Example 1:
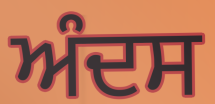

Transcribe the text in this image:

ਅੰਦਸ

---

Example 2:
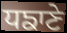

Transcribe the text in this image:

ਧਙਾਣੇ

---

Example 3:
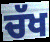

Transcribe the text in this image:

ਚੱਖ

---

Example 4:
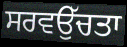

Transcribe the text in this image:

ਸਰਵਉੱਚਤਾ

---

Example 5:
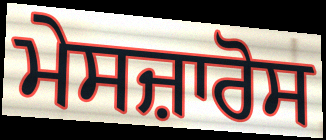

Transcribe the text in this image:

ਮੇਸਜ਼ਾਰੋਸ